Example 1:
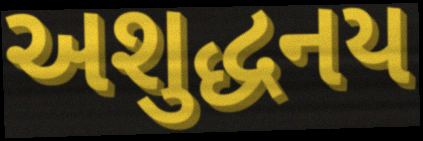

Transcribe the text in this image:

અશુદ્ધનય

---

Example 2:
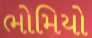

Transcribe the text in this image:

ભોમિયો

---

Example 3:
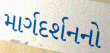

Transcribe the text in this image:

માર્ગદર્શનનો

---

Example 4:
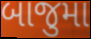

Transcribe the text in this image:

બાજુમા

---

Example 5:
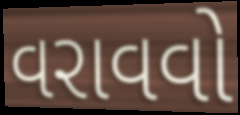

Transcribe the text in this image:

વરાવવો